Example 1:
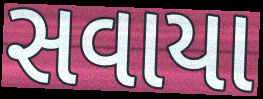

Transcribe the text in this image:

સવાયા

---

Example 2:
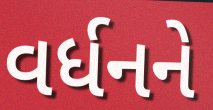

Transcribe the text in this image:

વર્ધનને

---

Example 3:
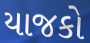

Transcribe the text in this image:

યાજકો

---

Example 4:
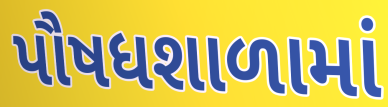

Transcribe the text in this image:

પૌષધશાળામાં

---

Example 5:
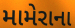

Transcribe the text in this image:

મામેરાના